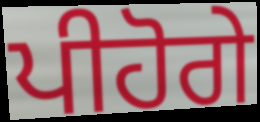
ਪੀਹੋਗੇ